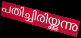
പതിച്ചിരിയ്ക്കുന്നു